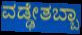
ವಡ್ಢೇತಬ್ಬಾ